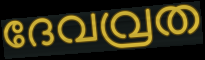
ദേവവ്രത